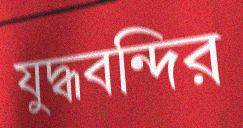
যুদ্ধবন্দির